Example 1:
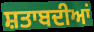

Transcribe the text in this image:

ਸ਼ਤਾਬਦੀਆਂ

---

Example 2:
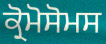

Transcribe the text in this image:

ਕ੍ਰੋਮੋਸੋਮਸ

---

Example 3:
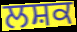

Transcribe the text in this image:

ਲਸ਼ਕ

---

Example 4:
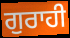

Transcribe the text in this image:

ਗੁਰਾਹੀ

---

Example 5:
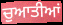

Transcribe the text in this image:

ਚੁਆਤੀਆਂ